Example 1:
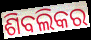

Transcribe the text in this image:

ଶିବଲିକର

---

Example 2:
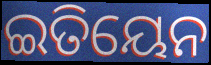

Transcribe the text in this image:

ଇତିୟେନ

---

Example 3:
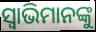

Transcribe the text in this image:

ସ୍ୱାଭିମାନଙ୍କୁ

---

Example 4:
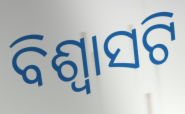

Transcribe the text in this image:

ବିଶ୍ୱାସଟି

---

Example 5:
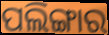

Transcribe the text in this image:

ପଲିଙ୍ଗାର